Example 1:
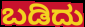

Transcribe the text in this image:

ಬಡಿದು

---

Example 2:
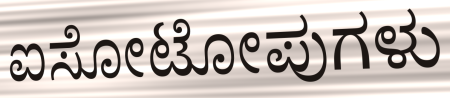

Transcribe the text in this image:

ಐಸೋಟೋಪುಗಳು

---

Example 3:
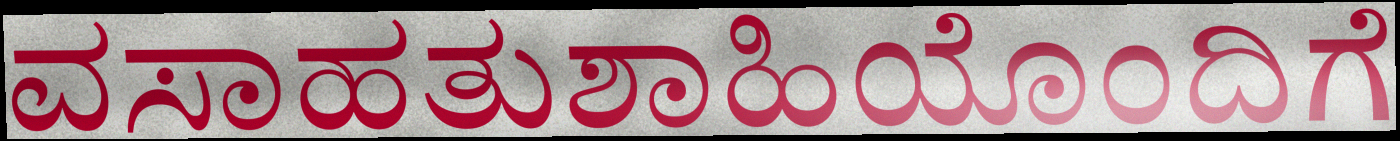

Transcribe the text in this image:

ವಸಾಹತುಶಾಹಿಯೊಂದಿಗೆ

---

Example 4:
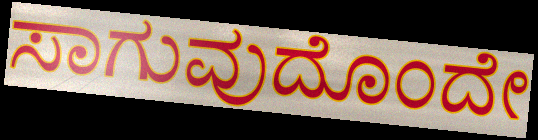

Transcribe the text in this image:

ಸಾಗುವುದೊಂದೇ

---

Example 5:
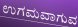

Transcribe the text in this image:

ಉಗಮವಾಗುವ